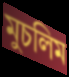
মুচলিম